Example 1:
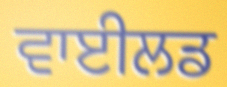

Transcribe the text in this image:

ਵਾਈਲਡ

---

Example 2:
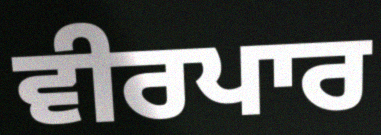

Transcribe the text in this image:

ਵੀਰਪਾਰ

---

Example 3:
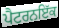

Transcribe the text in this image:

ਪੈਟਰਨਇੱਕ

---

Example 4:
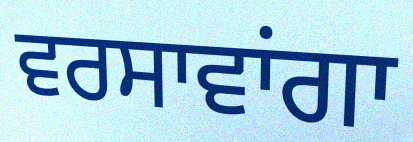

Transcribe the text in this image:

ਵਰਸਾਵਾਂਗਾ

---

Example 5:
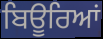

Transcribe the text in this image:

ਬਿਊਰਿਆਂ